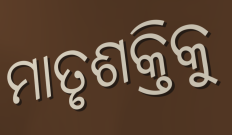
ମାତୃଶକ୍ତିକୁ